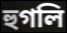
হুগলি